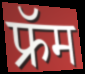
फ्रॅम